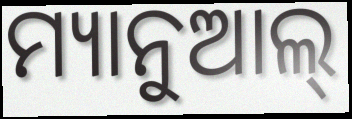
ମ୍ୟାନୁଆଲ୍